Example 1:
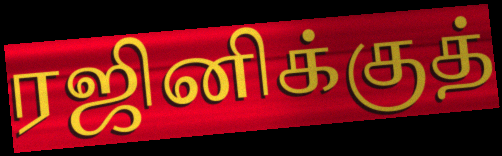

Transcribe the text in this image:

ரஜினிக்குத்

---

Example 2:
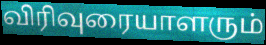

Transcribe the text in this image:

விரிவுரையாளரும்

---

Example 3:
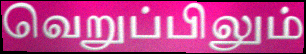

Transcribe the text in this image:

வெறுப்பிலும்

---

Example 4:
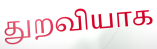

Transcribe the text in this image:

துறவியாக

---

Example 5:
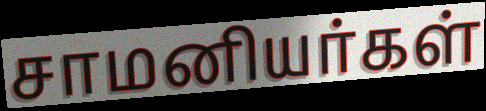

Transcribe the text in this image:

சாமனியர்கள்